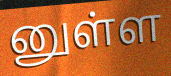
னுள்ள